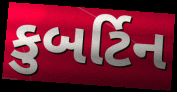
કુબર્ટિન